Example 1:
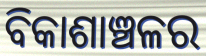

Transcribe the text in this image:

ବିକାଶାଞ୍ଚଳର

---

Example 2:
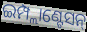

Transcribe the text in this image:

ଇମ୍ପ୍ଲାଣ୍ଟେସନ୍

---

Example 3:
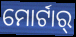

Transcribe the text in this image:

ମୋର୍ଟାର୍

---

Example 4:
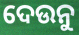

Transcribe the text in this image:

ଦେଉନୁ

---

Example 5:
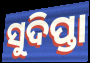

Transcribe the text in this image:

ସୁଦିପ୍ତା